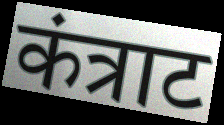
कंत्राट